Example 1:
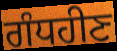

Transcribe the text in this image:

ਗੰਧਹੀਣ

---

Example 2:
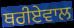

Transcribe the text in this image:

ਥਰੀਏਵਾਲ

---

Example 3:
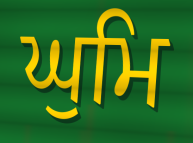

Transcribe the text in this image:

ਘੁਮਿ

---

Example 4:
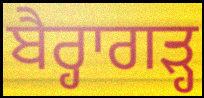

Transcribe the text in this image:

ਬੈਰ੍ਹਾਗੜ੍ਹ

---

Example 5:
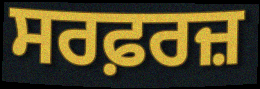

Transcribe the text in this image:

ਸਰਫ਼ਰਜ਼